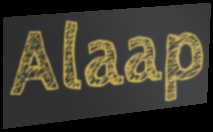
Alaap